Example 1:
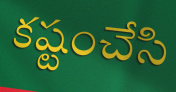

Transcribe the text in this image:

కష్టంచేసి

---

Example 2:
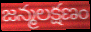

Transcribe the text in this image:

జన్మలక్షణం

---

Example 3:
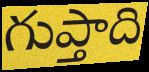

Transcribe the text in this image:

గుప్తాది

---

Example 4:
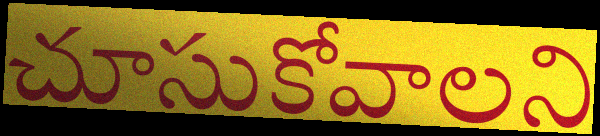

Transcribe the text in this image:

చూసుకోవాలని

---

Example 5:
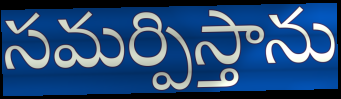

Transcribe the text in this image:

సమర్పిస్తాను